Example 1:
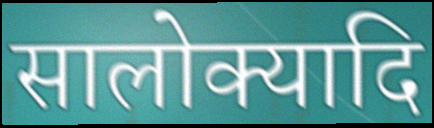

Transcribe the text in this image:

सालोक्यादि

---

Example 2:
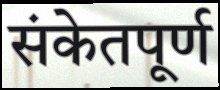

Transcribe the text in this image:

संकेतपूर्ण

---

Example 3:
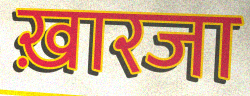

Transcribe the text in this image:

ख़ारजा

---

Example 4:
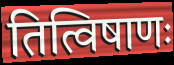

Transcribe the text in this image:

तित्विषाणः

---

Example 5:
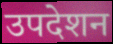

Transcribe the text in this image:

उपदेशन